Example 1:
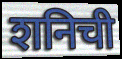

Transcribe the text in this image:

शनिची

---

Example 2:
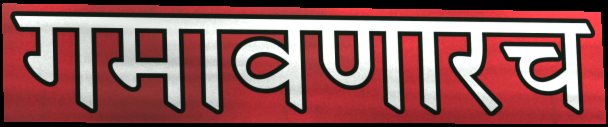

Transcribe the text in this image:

गमावणारच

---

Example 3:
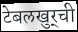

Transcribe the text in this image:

टेबलखुर्ची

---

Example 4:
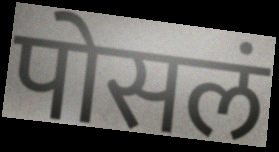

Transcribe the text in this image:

पोसलं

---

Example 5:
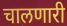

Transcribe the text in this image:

चालणारी